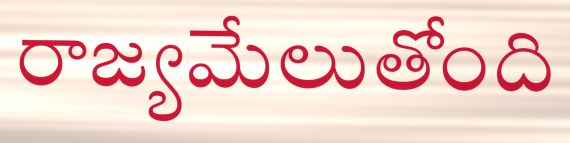
రాజ్యమేలుతోంది